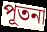
পূতনা